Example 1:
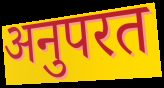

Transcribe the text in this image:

अनुपरत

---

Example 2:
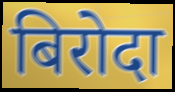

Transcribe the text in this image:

बिरोदा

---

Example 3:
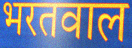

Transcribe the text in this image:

भरतवाल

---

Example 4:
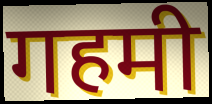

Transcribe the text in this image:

गहमी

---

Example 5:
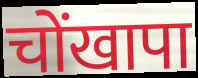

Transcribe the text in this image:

चोंखापा